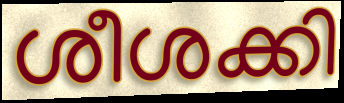
ശീശക്കി